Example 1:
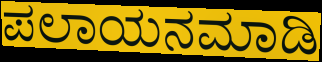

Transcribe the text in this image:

ಪಲಾಯನಮಾಡಿ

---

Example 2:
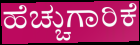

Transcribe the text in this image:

ಹೆಚ್ಚುಗಾರಿಕೆ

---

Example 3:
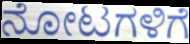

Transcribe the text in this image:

ನೋಟಗಳಿಗೆ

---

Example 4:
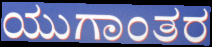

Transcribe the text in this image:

ಯುಗಾಂತರ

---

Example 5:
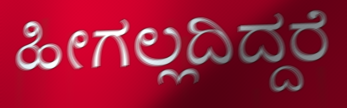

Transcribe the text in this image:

ಹೀಗಲ್ಲದಿದ್ದರೆ